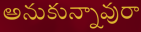
అనుకున్నావురా